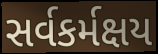
સર્વકર્મક્ષય